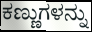
ಕಣ್ಣುಗಳನ್ನು